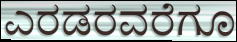
ಎರಡರವರೆಗೂ